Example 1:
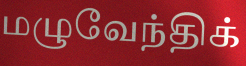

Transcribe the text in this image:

மழுவேந்திக்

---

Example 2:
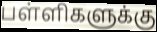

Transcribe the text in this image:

பள்ளிகளுக்கு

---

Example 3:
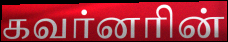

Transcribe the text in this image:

கவர்னரின்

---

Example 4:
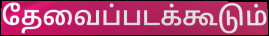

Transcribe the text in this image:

தேவைப்படக்கூடும்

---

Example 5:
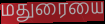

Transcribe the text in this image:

மதுரையை